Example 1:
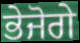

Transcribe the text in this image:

ਭੇਜੋਗੇ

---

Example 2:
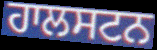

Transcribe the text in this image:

ਹਾਲਸਟਨ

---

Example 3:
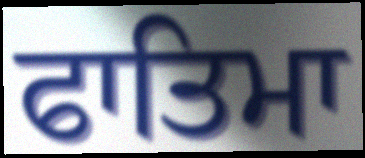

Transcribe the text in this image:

ਫਾਤਿਮਾ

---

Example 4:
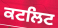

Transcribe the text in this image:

ਕਟਲਿਟ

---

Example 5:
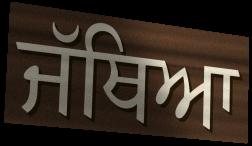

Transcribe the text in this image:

ਜੱਥਿਆ